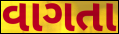
વાગતા